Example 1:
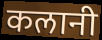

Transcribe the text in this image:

कलानी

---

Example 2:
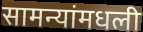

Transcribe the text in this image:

सामन्यांमधली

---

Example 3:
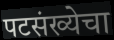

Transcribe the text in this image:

पटसंख्येचा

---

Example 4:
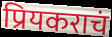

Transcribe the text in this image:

प्रियकराचं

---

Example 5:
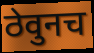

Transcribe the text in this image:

ठेवुनच